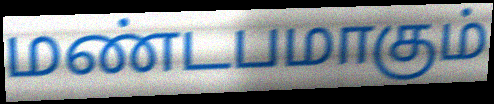
மண்டபமாகும்